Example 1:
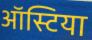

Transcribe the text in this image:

ऑस्टिया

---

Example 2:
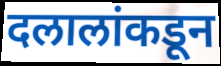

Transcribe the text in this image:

दलालांकडून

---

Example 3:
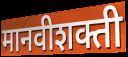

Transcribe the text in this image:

मानवीशक्ती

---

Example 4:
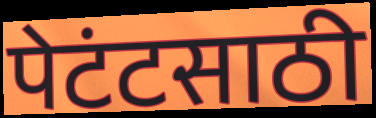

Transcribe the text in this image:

पेटंटसाठी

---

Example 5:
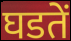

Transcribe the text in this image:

घडतें